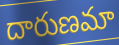
దారుణమా